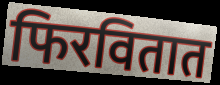
फिरवितात